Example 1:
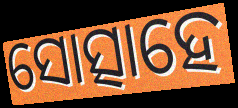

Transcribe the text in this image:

ସୋତ୍ସାହେ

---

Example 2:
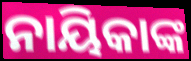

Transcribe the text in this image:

ନାୟିକାଙ୍କ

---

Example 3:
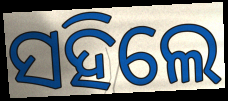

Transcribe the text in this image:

ସହିଲେ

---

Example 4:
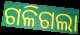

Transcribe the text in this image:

ଗଳିଗଲା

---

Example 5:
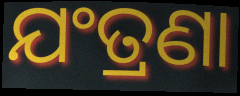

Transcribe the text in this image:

ଯଂତ୍ରଣା